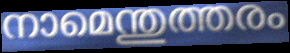
നാമെന്തുത്തരം